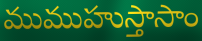
ముముహుస్తాసాం